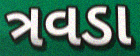
ત્રવડા